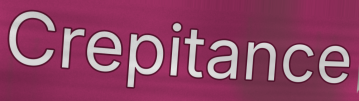
Crepitance